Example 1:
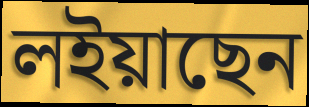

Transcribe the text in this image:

লইয়াছেন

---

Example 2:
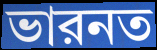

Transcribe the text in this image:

ভারনত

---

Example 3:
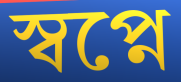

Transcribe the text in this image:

স্বপ্নে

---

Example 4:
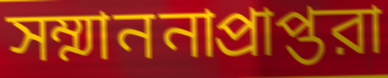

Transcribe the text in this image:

সম্মাননাপ্রাপ্তরা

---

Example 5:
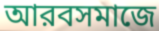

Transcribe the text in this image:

আরবসমাজে